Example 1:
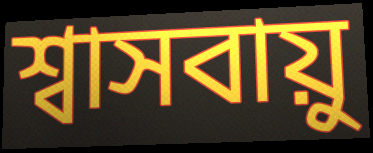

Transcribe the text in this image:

শ্বাসবায়ু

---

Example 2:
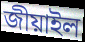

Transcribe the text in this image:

জীয়াইল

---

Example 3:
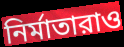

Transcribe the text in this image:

নির্মাতারাও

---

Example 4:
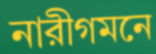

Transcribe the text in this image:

নারীগমনে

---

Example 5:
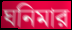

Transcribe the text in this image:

ঘনিমার